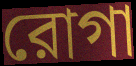
রোগা